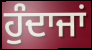
ਹੁੰਦਾਜਾਂ